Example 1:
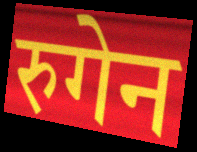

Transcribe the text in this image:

रुगेन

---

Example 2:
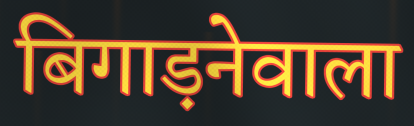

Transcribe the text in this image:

बिगाड़नेवाला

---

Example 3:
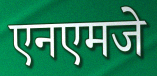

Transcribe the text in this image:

एनएमजे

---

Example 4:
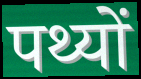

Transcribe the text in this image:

पथ्यों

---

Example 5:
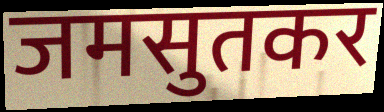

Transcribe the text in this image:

जमसुतकर